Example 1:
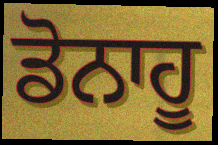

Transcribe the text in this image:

ਡੋਨਾਹੂ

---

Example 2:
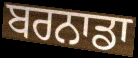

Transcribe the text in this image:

ਬਰਨਾਡਾ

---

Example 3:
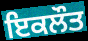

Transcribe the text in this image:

ਇਕਲੌਤ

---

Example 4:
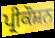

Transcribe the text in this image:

ਪ੍ਰੀਕੌਸ਼ਨ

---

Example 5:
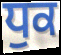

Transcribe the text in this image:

ਧੁਕ